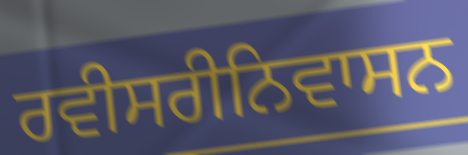
ਰਵੀਸਰੀਨਿਵਾਸਨ